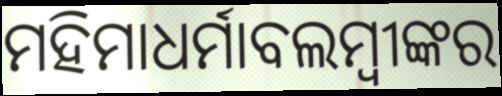
ମହିମାଧର୍ମାବଲମ୍ବୀଙ୍କର